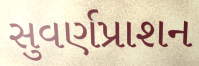
સુવર્ણપ્રાશન